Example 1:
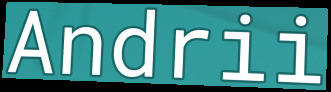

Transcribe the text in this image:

Andrii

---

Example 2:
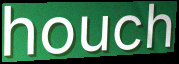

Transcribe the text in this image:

houch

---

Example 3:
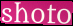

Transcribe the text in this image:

shoto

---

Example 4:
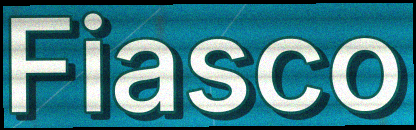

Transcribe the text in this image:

Fiasco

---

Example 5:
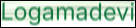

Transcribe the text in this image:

Logamadevi